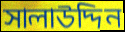
সালাউদ্দিন